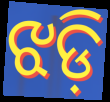
ଝଡ଼ି